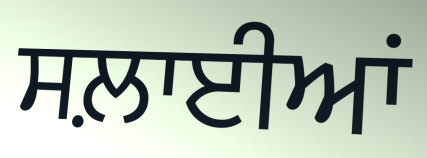
ਸਲ਼ਾਈਆਂ